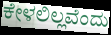
ಕೇಳಲಿಲ್ಲವೆಂದು